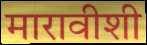
मारावीशी